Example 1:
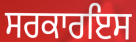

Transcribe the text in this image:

ਸਰਕਾਰਇਸ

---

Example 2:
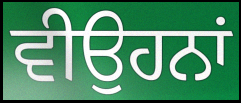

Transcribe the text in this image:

ਵੀਉਹਨਾਂ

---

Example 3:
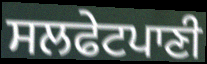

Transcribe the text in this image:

ਸਲਫੇਟਪਾਣੀ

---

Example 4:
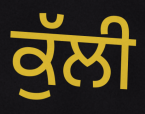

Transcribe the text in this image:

ਕੁੱਲੀ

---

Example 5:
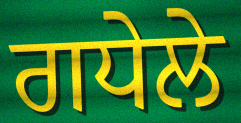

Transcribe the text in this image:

ਗਧੇਲੇ